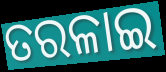
ତରଳାଇ